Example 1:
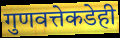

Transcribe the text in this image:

गुणवत्तेकडेही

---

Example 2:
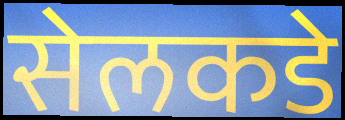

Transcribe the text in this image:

सेलकडे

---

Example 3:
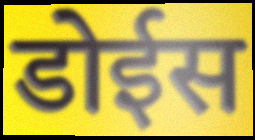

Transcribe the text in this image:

डोईस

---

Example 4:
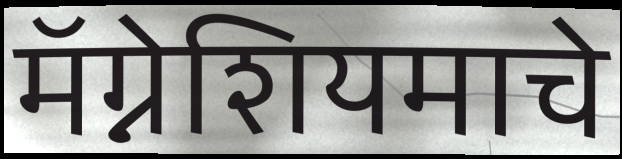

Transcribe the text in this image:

मॅग्नेशियमाचे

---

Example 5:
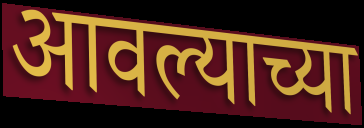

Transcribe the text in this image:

आवल्याच्या